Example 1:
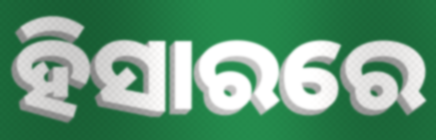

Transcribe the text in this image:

ହିସାରରେ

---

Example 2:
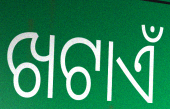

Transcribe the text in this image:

ଖଟାଏଁ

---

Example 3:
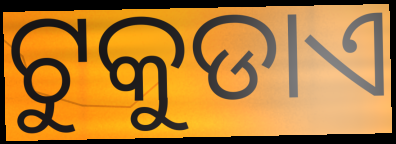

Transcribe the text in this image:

ଟୁକୁଡାଏ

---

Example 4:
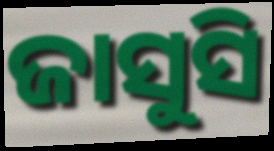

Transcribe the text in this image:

ଜାସୁସି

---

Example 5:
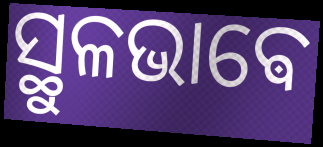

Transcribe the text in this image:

ସ୍ଥୁଳଭାଵେ